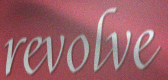
revolve